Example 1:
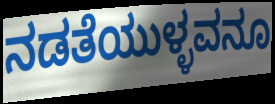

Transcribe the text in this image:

ನಡತೆಯುಳ್ಳವನೂ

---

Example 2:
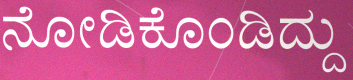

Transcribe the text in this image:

ನೋಡಿಕೊಂಡಿದ್ದು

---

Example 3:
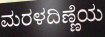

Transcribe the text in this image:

ಮರಳದಿಣ್ಣೆಯ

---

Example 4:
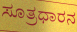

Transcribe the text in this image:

ಸೂತ್ರಧಾರನ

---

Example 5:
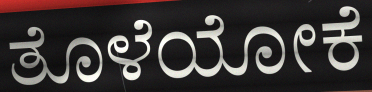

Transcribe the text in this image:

ತೊಳೆಯೋಕೆ